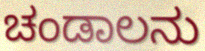
ಚಂಡಾಲನು